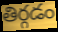
తిర్గడం